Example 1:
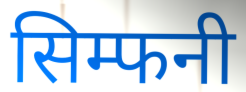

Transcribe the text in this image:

सिम्फनी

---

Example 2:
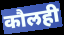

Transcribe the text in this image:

कौलही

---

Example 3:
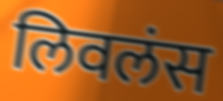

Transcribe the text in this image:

लिवलंस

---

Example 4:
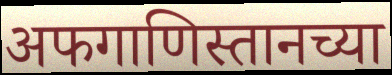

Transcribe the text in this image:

अफगाणिस्तानच्या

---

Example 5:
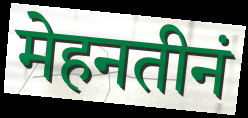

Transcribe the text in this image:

मेहनतीनं